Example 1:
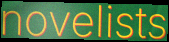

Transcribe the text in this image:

novelists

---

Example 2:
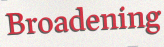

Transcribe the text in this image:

Broadening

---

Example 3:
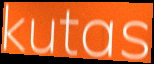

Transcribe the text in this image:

kutas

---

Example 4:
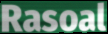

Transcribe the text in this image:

Rasoal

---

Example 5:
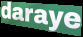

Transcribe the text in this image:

daraye